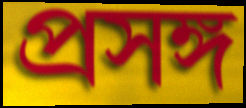
প্রসঙ্গ